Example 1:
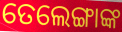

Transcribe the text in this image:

ତେଲେଙ୍ଗାଙ୍କ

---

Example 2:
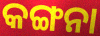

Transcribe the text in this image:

କଙ୍ଗନା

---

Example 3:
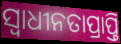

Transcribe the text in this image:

ସ୍ଵାଧୀନତାପ୍ରାପ୍ତି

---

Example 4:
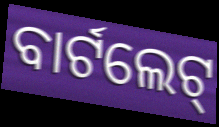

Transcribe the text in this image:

ବାର୍ଟଲେଟ୍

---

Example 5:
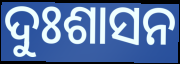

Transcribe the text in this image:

ଦୁଃଶାସନ